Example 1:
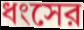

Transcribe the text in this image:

ধংসের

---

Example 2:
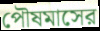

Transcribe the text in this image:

পৌষমাসের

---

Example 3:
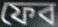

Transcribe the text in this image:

ফেব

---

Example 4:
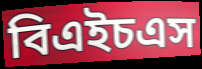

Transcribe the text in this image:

বিএইচএস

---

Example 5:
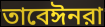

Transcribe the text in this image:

তাবেঈনরা